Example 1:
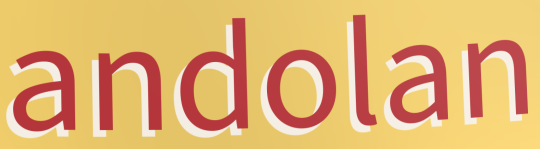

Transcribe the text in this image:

andolan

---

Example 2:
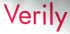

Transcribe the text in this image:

Verily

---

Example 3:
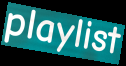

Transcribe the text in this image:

playlist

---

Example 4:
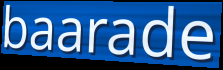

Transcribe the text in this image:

baarade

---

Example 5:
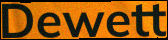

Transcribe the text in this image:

Dewett